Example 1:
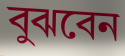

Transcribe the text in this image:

বুঝবেন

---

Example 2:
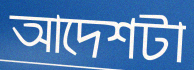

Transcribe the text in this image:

আদেশটা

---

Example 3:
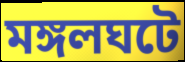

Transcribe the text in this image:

মঙ্গলঘটে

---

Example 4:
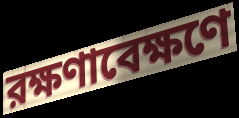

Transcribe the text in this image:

রক্ষণাবেক্ষণে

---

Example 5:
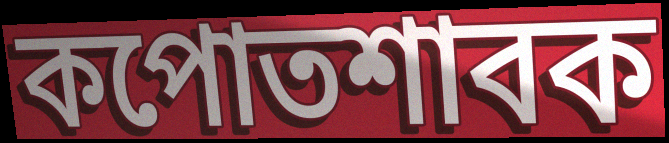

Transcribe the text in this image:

কপোতশাবক